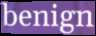
benign